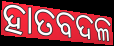
ହାତବଦଳ